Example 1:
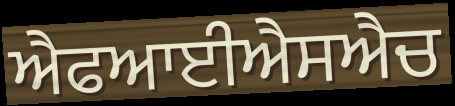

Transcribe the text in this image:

ਐਫਆਈਐਸਐਚ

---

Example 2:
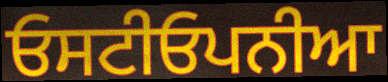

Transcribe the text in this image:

ਓਸਟੀਓਪਨੀਆ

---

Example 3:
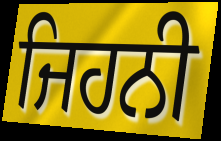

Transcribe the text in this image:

ਜਿਹਨੀ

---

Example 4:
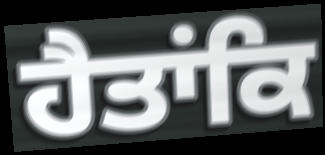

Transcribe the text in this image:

ਹੈਤਾਂਕਿ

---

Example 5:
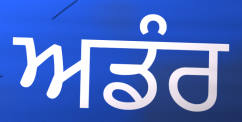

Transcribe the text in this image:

ਅਡੰਰ